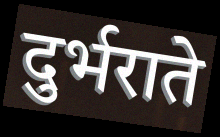
दुर्भराते